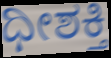
ಧೀಶಕ್ತಿ